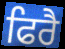
ਫਿਰੈ